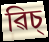
ৱিচ্